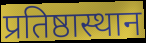
प्रतिष्ठास्थान